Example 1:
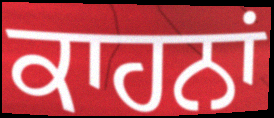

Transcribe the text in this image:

ਕਾਹਨਾਂ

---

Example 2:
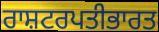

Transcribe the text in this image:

ਰਾਸ਼ਟਰਪਤੀਭਾਰਤ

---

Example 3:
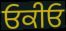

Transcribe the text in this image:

ਓਕੀਓ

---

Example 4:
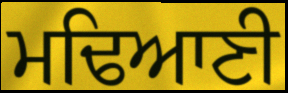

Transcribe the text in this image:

ਮਢਿਆਣੀ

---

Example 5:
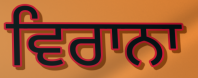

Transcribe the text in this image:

ਵਿਰਾਨਾ